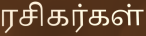
ரசிகர்கள்